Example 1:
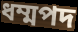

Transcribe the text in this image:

ধম্মপদ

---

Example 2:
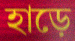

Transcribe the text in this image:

হাড়ে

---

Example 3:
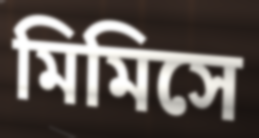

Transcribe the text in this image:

মিমিসে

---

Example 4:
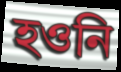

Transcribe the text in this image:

হওনি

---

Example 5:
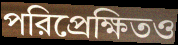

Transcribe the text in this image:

পরিপ্রেক্ষিতও